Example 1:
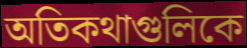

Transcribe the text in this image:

অতিকথাগুলিকে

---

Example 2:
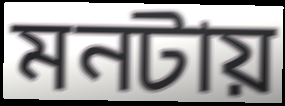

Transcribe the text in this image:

মনটায়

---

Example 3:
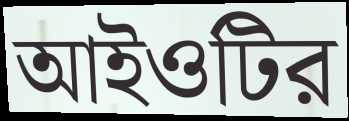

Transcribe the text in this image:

আইওটির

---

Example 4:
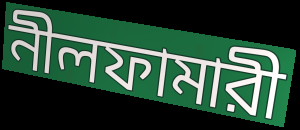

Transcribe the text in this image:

নীলফামারী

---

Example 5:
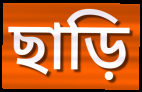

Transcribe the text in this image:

ছাড়ি